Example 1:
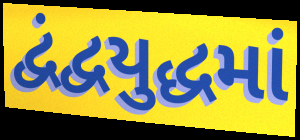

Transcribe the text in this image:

દ્વંદ્વયુદ્ધમાં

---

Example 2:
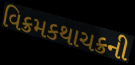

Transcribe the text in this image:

વિક્રમકથાચક્રની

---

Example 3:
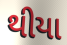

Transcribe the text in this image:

થીયા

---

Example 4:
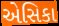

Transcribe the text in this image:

એસિકા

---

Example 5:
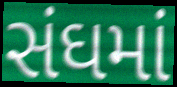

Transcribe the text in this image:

સંઘમાં